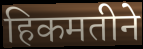
हिकमतीने